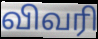
விவரி